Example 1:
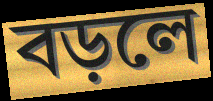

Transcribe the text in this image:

বড়লে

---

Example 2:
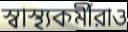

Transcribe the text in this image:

স্বাস্থ্যকর্মীরাও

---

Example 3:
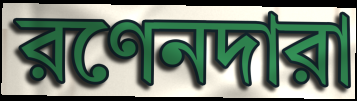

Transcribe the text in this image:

রণেনদারা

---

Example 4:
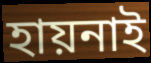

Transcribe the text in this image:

হায়নাই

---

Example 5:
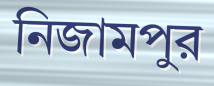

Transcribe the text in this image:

নিজামপুর